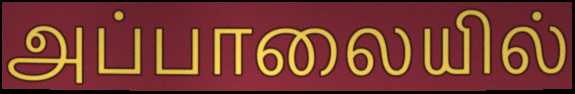
அப்பாலையில்